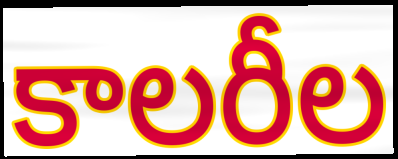
కాలరీల